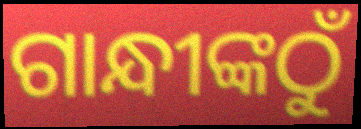
ଗାନ୍ଧୀଙ୍କଠୁଁ